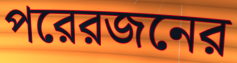
পরেরজনের